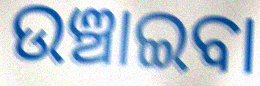
ଉଞ୍ଚାଇବା